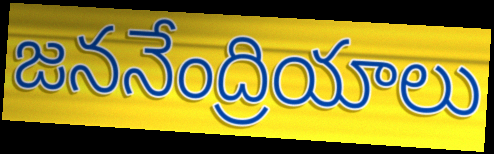
జననేంద్రియాలు